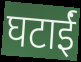
घटाईं